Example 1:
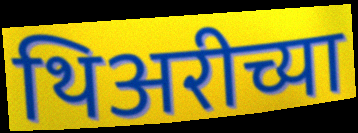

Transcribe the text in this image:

थिअरीच्या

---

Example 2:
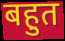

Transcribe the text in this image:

बहुत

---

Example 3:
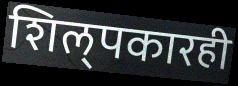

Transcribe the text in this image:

शिल्पकारही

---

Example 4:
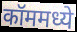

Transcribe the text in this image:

कॉममध्ये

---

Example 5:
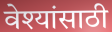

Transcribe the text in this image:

वेश्यांसाठी